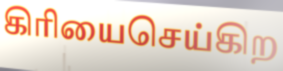
கிரியைசெய்கிற